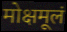
मोक्षमूलं